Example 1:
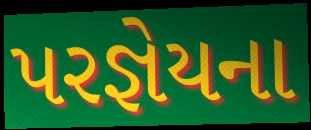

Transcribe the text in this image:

પરજ્ઞેયના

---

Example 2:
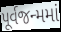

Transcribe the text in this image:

પૂર્વજન્મમાં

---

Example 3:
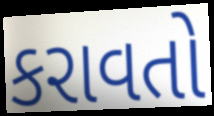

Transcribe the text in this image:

કરાવતો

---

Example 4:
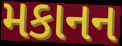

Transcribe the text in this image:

મકાનન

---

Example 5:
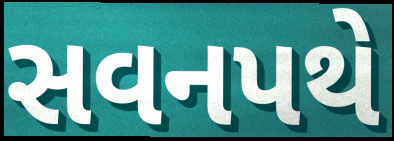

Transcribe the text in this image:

સવનપથે